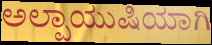
ಅಲ್ಪಾಯುಷಿಯಾಗಿ